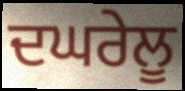
ਦਘਰੇਲੂ